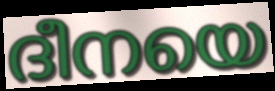
ദീനയെ